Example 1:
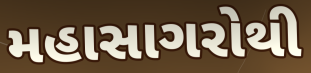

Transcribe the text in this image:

મહાસાગરોથી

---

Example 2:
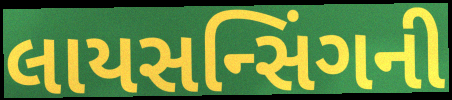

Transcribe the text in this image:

લાયસન્સિંગની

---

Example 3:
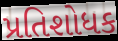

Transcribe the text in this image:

પ્રતિશોધક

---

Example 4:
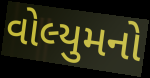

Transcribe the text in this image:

વોલ્યુમનો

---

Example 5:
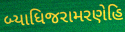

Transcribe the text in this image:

બ્યાધિજરામરણેહિ